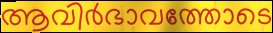
ആവിർഭാവത്തോടെ